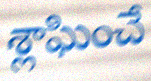
శ్లాఘించే